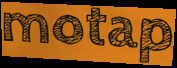
motap